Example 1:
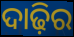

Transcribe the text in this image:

ଦାଢ଼ିର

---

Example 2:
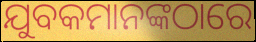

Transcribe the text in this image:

ଯୁବକମାନଙ୍କଠାରେ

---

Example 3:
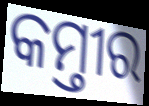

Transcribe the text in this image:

କମ୍ତୀର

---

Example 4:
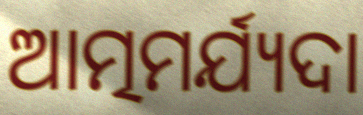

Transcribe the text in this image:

ଆତ୍ମମର୍ଯ୍ୟଦା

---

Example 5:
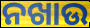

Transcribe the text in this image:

ନଖାଉ